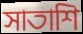
সাতাশি